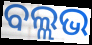
ବଲ୍ଲଭ